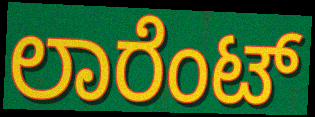
ಲಾರೆಂಟ್